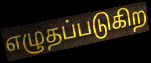
எழுதப்படுகிற